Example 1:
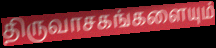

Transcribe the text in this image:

திருவாசகங்களையும்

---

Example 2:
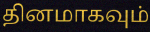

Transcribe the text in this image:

தினமாகவும்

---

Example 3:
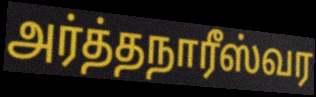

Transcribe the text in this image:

அர்த்தநாரீஸ்வர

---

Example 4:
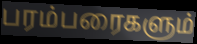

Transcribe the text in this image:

பரம்பரைகளும்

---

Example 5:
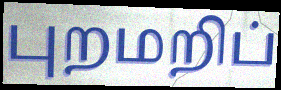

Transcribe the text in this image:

புறமறிப்